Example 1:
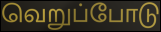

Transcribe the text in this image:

வெறுப்போடு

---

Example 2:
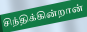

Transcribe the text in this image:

சிந்திக்கின்றான்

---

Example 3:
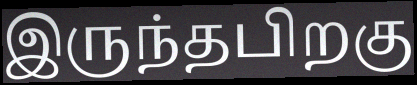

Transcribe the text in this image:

இருந்தபிறகு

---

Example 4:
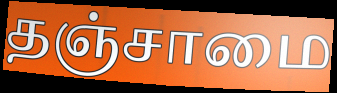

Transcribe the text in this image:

தஞ்சாமை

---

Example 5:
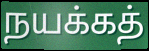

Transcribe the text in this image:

நயக்கத்